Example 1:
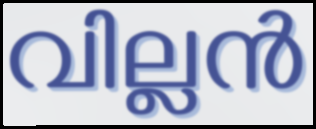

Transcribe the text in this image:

വില്ലൻ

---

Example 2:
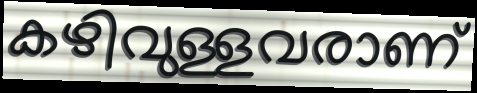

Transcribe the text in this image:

കഴിവുള്ളവരാണ്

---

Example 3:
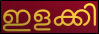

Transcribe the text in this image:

ഇളക്കി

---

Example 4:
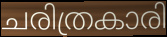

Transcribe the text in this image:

ചരിത്രകാരി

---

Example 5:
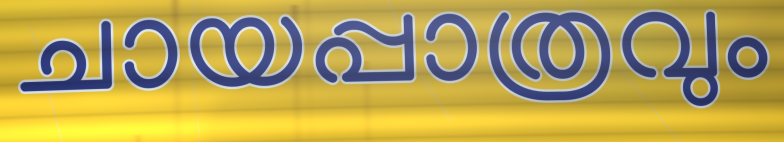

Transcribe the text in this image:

ചായപ്പാത്രവും